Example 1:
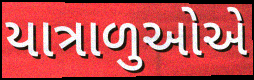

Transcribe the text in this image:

યાત્રાળુઓએ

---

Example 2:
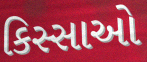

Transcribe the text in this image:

કિસ્સાઓ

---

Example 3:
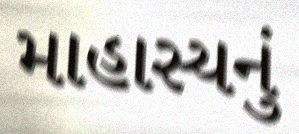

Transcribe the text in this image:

માહાસ્યનું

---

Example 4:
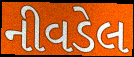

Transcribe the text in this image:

નીવડેલ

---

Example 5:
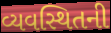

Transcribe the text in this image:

વ્યવસ્થિતની